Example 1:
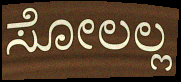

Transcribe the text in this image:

ಸೋಲಲ್ಲ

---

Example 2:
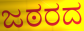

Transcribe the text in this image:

ಜಠರದ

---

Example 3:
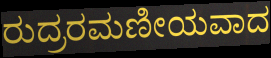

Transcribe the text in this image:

ರುದ್ರರಮಣೀಯವಾದ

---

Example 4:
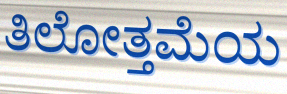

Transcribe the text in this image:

ತಿಲೋತ್ತಮೆಯ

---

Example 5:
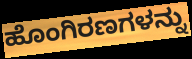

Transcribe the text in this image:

ಹೊಂಗಿರಣಗಳನ್ನು